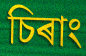
চিৰাং